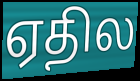
ஏதில